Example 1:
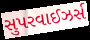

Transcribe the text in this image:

સુપરવાઈઝર્સ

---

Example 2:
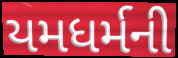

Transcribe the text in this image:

યમધર્મની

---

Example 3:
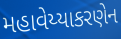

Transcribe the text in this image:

મહાવેય્યાકરણેન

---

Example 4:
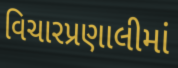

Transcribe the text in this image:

વિચારપ્રણાલીમાં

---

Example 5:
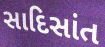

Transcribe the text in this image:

સાદિસાંત